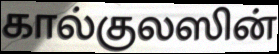
கால்குலஸின்